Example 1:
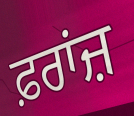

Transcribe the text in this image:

ਫ਼ਰਾਂਜ਼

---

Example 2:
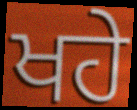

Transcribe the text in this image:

ਖਹੇ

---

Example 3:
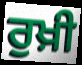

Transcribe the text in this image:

ਰੁਖ਼ੀ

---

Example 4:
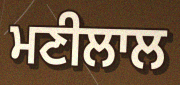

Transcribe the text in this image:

ਮਣੀਲਾਲ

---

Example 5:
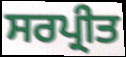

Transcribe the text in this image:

ਸਰਪ੍ਰੀਤ